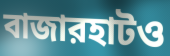
বাজারহাটও